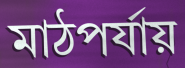
মাঠপর্যায়